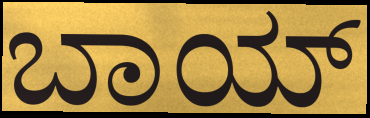
ಬಾಯ್